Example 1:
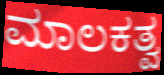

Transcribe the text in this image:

ಮಾಲಕತ್ವ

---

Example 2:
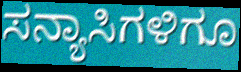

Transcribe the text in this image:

ಸನ್ಯಾಸಿಗಳಿಗೂ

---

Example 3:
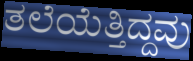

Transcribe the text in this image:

ತಲೆಯೆತ್ತಿದ್ದವು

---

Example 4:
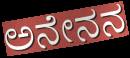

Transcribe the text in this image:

ಅನೇನನ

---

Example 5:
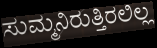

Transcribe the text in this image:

ಸುಮ್ಮನಿರುತ್ತಿರಲಿಲ್ಲ